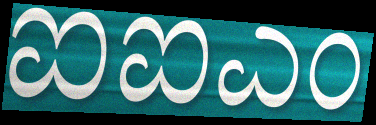
ಐಐಎಂ